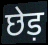
छेड़